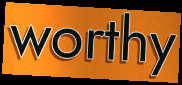
worthy